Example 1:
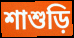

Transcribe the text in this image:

শাশুড়ি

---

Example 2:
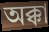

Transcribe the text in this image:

অক্কা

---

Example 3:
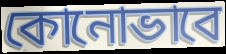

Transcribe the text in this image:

কোনোভাবে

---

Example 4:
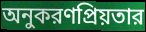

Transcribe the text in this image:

অনুকরণপ্রিয়তার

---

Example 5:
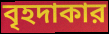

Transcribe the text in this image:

বৃহদাকার